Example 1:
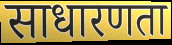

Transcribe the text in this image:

साधारणता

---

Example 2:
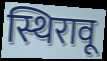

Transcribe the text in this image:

स्थिरावू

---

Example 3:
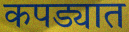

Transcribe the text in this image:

कपड्यात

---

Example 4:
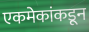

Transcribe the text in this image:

एकमेकांकडून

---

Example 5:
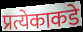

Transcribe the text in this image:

प्रत्येकाकडे